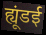
ह्यूंडई